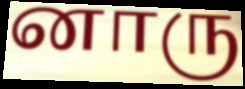
னாரு